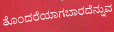
ತೊಂದರೆಯಾಗಬಾರದೆನ್ನುವ